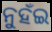
ନୁହଁଇ